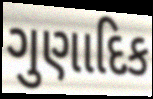
ગુણાદિક